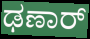
ಢಣಾರ್